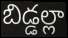
బిడ్డల్లా